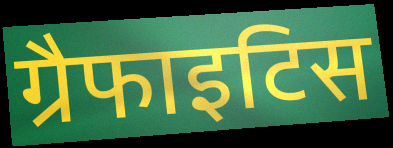
ग्रैफाइटिस